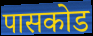
पासकोड